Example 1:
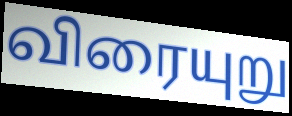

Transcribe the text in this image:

விரையுறு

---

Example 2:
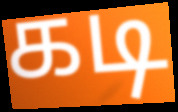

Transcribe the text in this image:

கடி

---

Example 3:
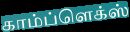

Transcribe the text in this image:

காம்ப்ளெக்ஸ்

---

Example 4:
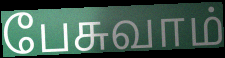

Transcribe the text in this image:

பேசுவாம்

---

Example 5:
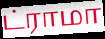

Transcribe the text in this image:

ட்ராமா